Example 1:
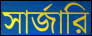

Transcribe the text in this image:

সার্জারি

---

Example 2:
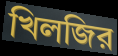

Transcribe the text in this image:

খিলজির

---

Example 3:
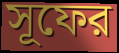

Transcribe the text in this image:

সূফের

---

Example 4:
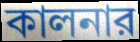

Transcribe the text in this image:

কালনার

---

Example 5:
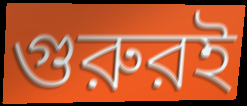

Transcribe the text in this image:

গুরুরই